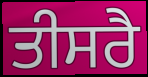
ਤੀਸਰੈ